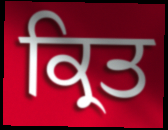
ਕ੍ਰਿਤ